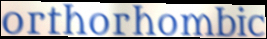
orthorhombic